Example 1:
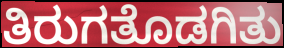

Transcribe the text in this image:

ತಿರುಗತೊಡಗಿತು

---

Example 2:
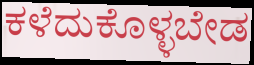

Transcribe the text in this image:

ಕಳೆದುಕೊಳ್ಳಬೇಡ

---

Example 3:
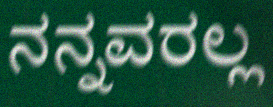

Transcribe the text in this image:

ನನ್ನವರಲ್ಲ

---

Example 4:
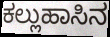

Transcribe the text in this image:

ಕಲ್ಲುಹಾಸಿನ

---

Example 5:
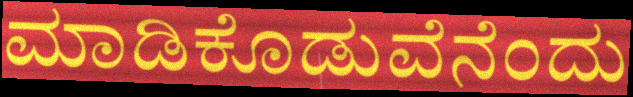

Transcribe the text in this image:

ಮಾಡಿಕೊಡುವೆನೆಂದು